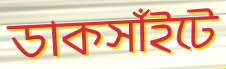
ডাকসাঁইটে